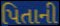
પિતાની